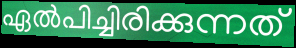
ഏൽപിച്ചിരിക്കുന്നത്